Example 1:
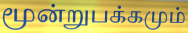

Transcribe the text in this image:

மூன்றுபக்கமும்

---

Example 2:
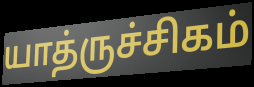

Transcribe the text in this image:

யாத்ருச்சிகம்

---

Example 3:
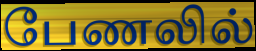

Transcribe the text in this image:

பேணலில்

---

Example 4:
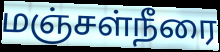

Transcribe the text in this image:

மஞ்சள்நீரை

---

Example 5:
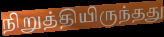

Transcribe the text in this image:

நிறுத்தியிருந்தது